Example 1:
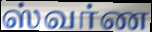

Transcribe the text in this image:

ஸ்வர்ண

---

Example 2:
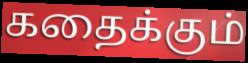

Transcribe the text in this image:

கதைக்கும்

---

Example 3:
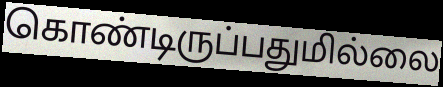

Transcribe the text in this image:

கொண்டிருப்பதுமில்லை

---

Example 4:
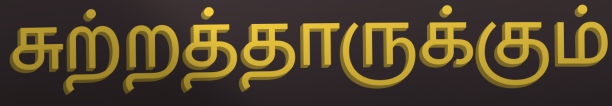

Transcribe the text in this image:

சுற்றத்தாருக்கும்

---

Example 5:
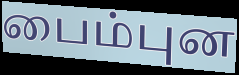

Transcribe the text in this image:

பைம்புன